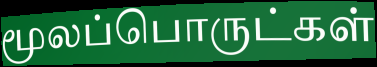
மூலப்பொருட்கள்